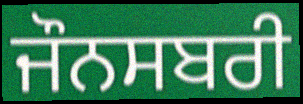
ਜੌਨਸਬਰੀ